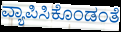
ವ್ಯಾಪಿಸಿಕೊಂಡಂತೆ